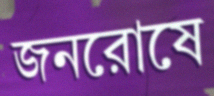
জনরোষে